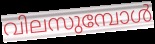
വിലസുമ്പോൾ